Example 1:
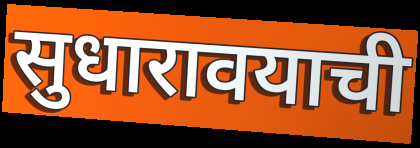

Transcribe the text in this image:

सुधारावयाची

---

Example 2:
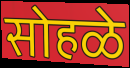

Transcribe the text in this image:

सोहळे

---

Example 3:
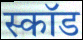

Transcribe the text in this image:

स्कॉड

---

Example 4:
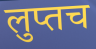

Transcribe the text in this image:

लुप्तच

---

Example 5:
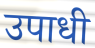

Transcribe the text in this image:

उपाधी